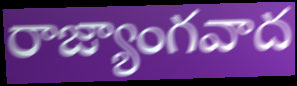
రాజ్యాంగవాద